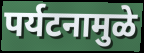
पर्यटनामुळे